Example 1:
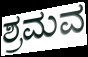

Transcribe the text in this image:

ಶ್ರಮವ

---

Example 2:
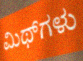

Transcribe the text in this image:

ಮಿಥ್‌ಗಳು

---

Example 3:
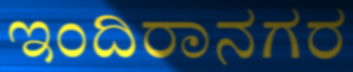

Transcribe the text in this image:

ಇಂದಿರಾನಗರ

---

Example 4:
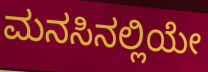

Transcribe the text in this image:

ಮನಸಿನಲ್ಲಿಯೇ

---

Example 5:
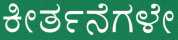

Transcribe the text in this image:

ಕೀರ್ತನೆಗಳೇ